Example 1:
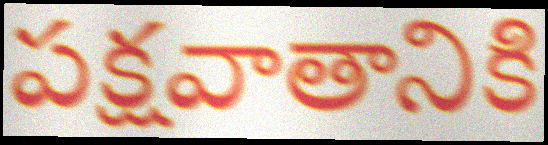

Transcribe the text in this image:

పక్షవాతానికి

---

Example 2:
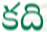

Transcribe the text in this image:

కది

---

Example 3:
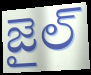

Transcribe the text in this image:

జైల్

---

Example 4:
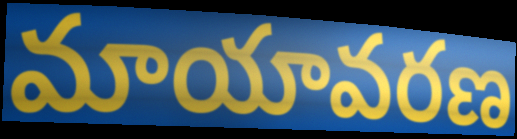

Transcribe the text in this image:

మాయావరణ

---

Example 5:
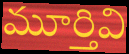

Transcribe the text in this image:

మూర్తివి